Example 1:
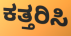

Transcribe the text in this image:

ಕತ್ತರಿಸಿ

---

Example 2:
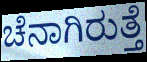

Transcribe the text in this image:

ಚೆನಾಗಿರುತ್ತೆ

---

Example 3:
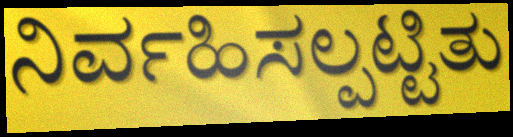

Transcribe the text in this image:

ನಿರ್ವಹಿಸಲ್ಪಟ್ಟಿತು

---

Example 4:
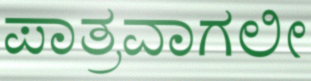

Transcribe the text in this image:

ಪಾತ್ರವಾಗಲೀ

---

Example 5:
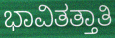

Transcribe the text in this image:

ಭಾವಿತತ್ತಾತಿ